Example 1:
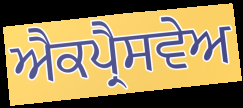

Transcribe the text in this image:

ਐਕਪ੍ਰੈਸਵੇਅ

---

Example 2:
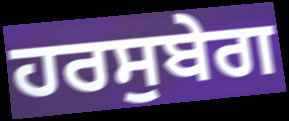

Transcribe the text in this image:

ਹਰਸੁਬੇਗ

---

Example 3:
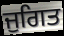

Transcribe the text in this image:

ਜੁਗਿਤ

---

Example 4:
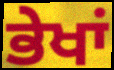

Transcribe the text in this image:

ਭੇਖਾਂ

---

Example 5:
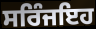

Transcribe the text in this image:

ਸਰਿੰਜਇਹ